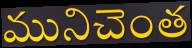
మునిచెంత